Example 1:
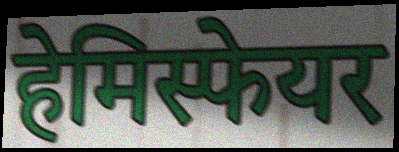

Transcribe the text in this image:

हेमिस्फेयर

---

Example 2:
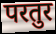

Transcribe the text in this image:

परतुर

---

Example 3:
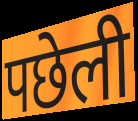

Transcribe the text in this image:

पछेली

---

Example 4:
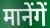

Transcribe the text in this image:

मानेंगें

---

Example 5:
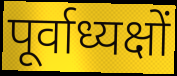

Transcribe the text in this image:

पूर्वाध्यक्षों